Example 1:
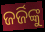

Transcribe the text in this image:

ଜର୍ଜିଙ୍କୁ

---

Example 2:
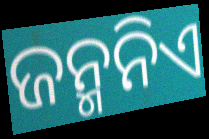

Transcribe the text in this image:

ଜନ୍ମନିଏ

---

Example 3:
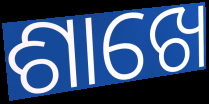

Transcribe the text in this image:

ଶାଖେ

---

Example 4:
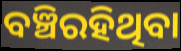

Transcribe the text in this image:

ବଞ୍ଚିରହିଥିବା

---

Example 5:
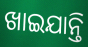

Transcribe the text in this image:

ଖାଇଯାନ୍ତି